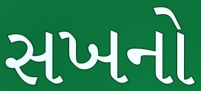
સખનો